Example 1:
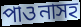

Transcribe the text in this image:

পাওনাসহ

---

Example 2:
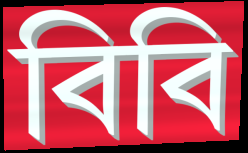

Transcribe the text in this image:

বিবি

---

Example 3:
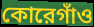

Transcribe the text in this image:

কোরেগাঁও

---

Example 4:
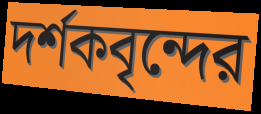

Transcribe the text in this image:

দর্শকবৃন্দের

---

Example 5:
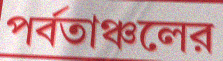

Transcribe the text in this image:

পর্বতাঞ্চলের